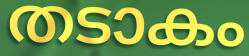
തടാകം